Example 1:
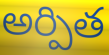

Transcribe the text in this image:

అర్పిత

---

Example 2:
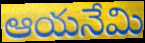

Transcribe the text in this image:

ఆయనేమి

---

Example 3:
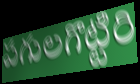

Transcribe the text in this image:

పగులగొట్టిరి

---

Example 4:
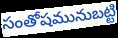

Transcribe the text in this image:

సంతోషమునుబట్టి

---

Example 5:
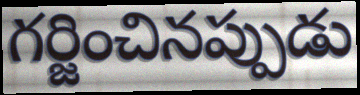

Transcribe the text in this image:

గర్జించినప్పుడు